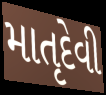
માતૃદેવી